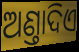
ଅଣ୍ତାଦିଏ